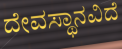
ದೇವಸ್ಥಾನವಿದೆ